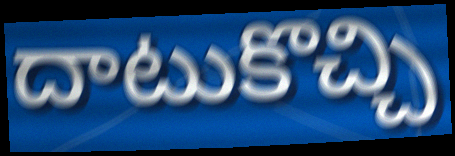
దాటుకొచ్చి